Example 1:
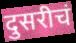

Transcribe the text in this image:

दुसरीचं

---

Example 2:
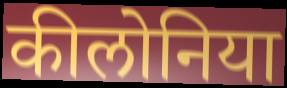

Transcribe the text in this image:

कीलोनिया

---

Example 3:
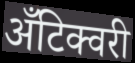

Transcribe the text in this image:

अँटिक्वरी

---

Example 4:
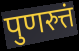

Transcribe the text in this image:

पुणरुत्तं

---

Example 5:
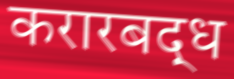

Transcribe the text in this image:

करारबद्ध